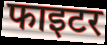
फाइटर